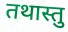
तथास्तु